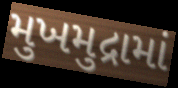
મુખમુદ્રામાં